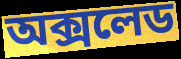
অক্সলেড